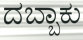
ದಬ್ಬಾಕು